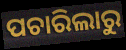
ପଚାରିଲାରୁ